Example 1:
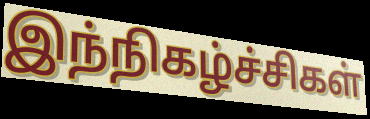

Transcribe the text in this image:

இந்நிகழ்ச்சிகள்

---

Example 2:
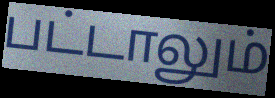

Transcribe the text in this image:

பட்டாலும்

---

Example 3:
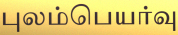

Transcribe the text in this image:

புலம்பெயர்வு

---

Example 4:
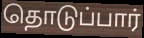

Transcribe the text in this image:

தொடுப்பார்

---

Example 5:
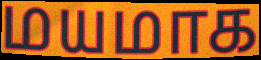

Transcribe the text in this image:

மயமாக